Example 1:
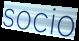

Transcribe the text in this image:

socio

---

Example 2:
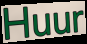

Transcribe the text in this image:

Huur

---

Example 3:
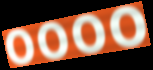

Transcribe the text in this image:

oooo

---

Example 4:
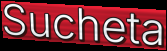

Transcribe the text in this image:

Sucheta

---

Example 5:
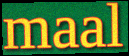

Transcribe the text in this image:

maal